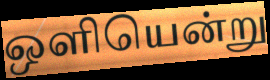
ஒளியென்று